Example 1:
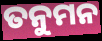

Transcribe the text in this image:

ତନୁମନ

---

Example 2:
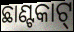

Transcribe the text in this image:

ଛାଣ୍ଟକାଟ୍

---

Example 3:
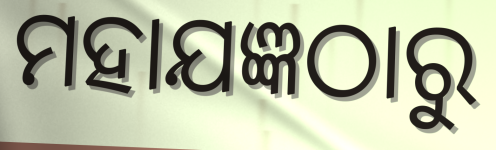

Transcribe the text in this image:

ମହାଯଜ୍ଞଠାରୁ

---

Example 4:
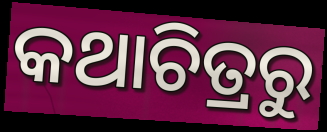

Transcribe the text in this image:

କଥାଚିତ୍ରରୁ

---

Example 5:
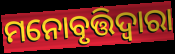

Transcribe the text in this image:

ମନୋବୃତ୍ତିଦ୍ଵାରା